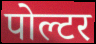
पोल्टर